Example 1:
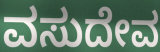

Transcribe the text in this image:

ವಸುದೇವ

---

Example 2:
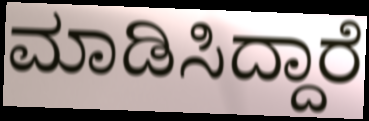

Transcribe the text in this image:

ಮಾಡಿಸಿದ್ದಾರೆ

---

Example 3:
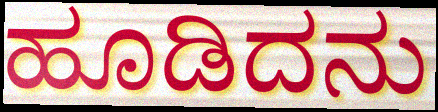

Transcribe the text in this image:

ಹೂಡಿದನು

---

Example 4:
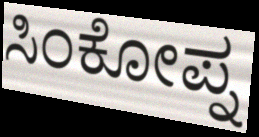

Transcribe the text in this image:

ಸಿಂಕೋಪ್ನ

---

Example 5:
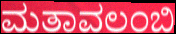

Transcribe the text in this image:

ಮತಾವಲಂಬಿ